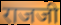
राजजी